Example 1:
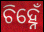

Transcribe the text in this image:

ଚିହ୍ନେଁ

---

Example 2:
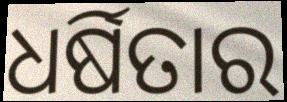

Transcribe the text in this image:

ଧର୍ଷିତାର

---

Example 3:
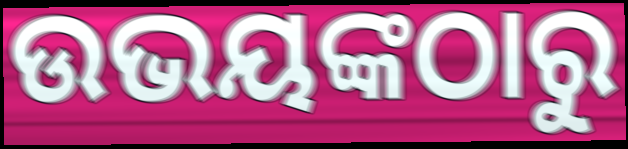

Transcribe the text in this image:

ଉଭୟଙ୍କଠାରୁ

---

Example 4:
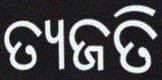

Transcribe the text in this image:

ତ୍ୟଜତି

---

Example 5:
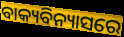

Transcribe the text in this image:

ବାକ୍ୟବିନ୍ୟାସରେ